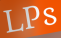
LPs